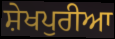
ਸ਼ੇਖਪੁਰੀਆ